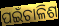
ପଇଁଚାଳିଶ